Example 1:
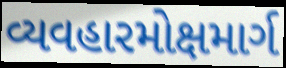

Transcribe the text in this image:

વ્યવહારમોક્ષમાર્ગ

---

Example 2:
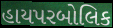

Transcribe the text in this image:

હાયપરબોલિક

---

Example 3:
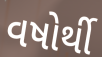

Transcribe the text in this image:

વષોર્થી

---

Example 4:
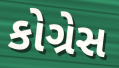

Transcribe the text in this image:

કોગ્રેસ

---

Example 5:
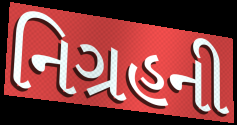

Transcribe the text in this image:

નિગ્રહની